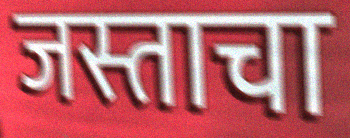
जस्ताचा